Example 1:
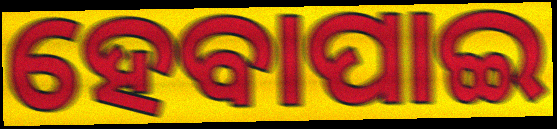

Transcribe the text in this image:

ହେବାପାଇ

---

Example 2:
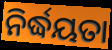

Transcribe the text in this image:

ନିର୍ଦ୍ଧୟତା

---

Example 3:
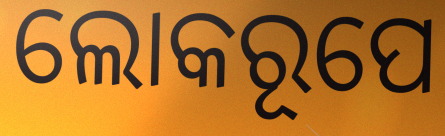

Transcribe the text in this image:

ଲୋକରୂପେ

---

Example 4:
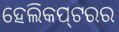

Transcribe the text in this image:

ହେଲିକପ୍‌ଟରର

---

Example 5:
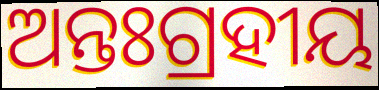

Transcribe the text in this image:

ଅନ୍ତଃଗ୍ରହୀୟ